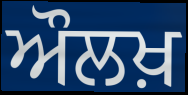
ਔਲਖ਼